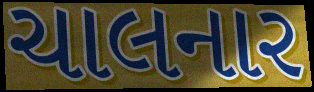
ચાલનાર